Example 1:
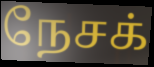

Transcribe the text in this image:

நேசக்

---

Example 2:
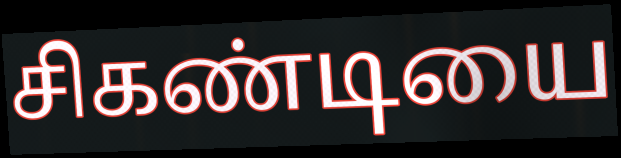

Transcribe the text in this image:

சிகண்டியை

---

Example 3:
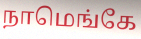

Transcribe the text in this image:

நாமெங்கே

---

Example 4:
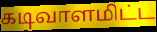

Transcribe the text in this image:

கடிவாளமிட்ட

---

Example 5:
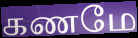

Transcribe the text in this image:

கணமே